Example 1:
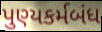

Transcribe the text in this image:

પુણ્યકર્મબંધ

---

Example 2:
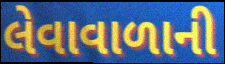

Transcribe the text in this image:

લેવાવાળાની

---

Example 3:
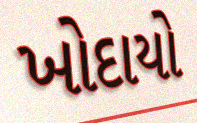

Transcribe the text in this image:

ખોદાયો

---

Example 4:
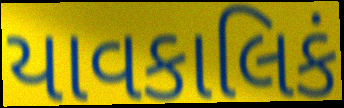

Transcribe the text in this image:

યાવકાલિકં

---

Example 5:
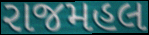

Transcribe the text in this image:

રાજમહલ